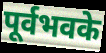
पूर्वभवके